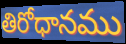
తిరోధానము